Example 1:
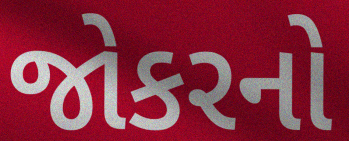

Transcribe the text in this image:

જોકરનો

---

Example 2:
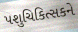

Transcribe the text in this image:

પશુચિકિત્સકને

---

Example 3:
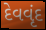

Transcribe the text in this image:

દેવવૃંદ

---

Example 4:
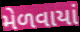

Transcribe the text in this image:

મેળવાયાં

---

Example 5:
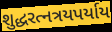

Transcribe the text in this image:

શુદ્ધરત્નત્રયપર્યાય